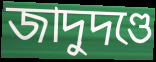
জাদুদণ্ডে